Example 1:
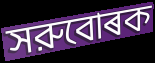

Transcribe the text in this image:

সৰুবোৰক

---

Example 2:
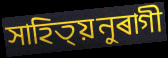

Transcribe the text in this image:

সাহিত্য়নুৰাগী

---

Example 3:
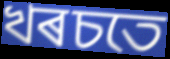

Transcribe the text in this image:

খৰচতে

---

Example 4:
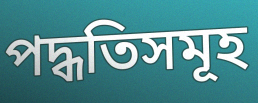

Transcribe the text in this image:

পদ্ধতিসমূহ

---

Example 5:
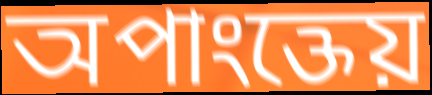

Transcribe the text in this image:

অপাংক্তেয়